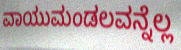
ವಾಯುಮಂಡಲವನ್ನೆಲ್ಲ